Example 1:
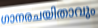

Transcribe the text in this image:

ഗാനരചയിതാവും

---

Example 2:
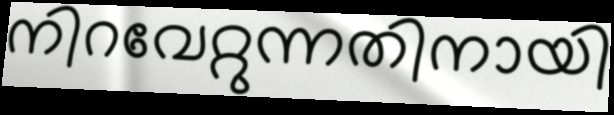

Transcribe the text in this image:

നിറവേറ്റുന്നതിനായി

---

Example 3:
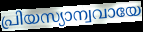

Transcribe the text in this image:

പ്രിയസ്യാന്വവായേ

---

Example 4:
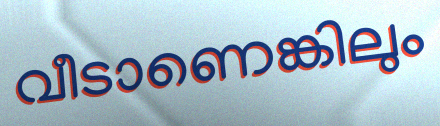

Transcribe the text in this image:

വീടാണെങ്കിലും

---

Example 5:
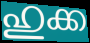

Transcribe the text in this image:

ഹുക്ക